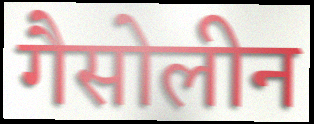
गैसोलीन